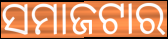
ସମାଜଟାର